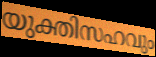
യുക്തിസഹവും